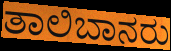
ತಾಲಿಬಾನರು